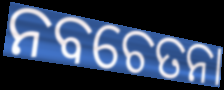
ନବଚେତନା